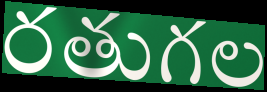
రతుగల